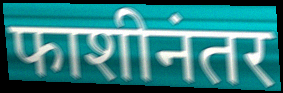
फाशीनंतर